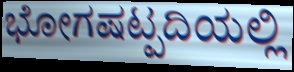
ಭೋಗಷಟ್ಪದಿಯಲ್ಲಿ